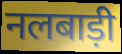
नलबाड़ी